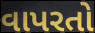
વાપરતો